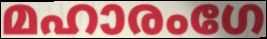
മഹാരംഗേ